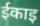
ईकाइ